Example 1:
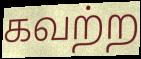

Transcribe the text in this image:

கவற்ற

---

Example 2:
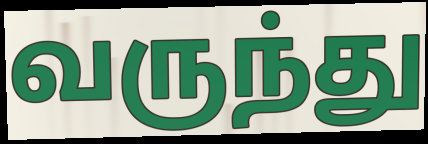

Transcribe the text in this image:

வருந்து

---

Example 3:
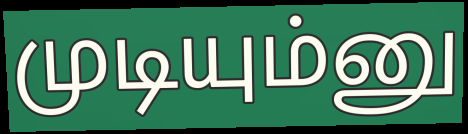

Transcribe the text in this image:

முடியும்னு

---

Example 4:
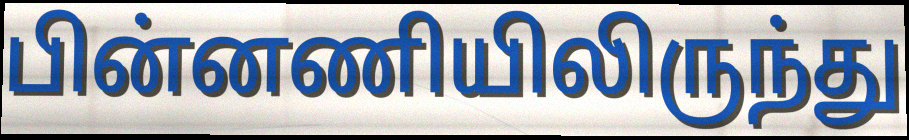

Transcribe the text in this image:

பின்னணியிலிருந்து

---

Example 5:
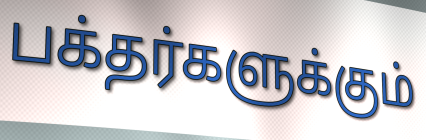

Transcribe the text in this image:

பக்தர்களுக்கும்